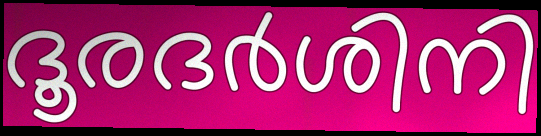
ദൂരദർശിനി